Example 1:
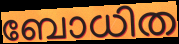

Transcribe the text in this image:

ബോധിത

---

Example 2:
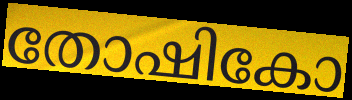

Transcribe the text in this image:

തോഷികോ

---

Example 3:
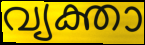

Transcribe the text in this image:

വ്യക്താ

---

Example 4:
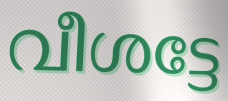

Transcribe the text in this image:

വീശട്ടേ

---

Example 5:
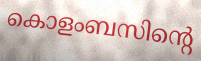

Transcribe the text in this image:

കൊളംബസിന്റെ